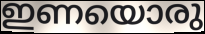
ഇണയൊരു